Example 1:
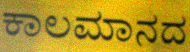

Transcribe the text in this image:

ಕಾಲಮಾನದ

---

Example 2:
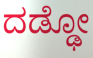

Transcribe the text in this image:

ದಡ್ಢೋ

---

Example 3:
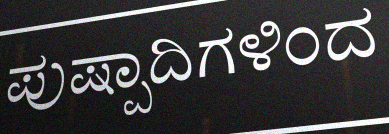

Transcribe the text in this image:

ಪುಷ್ಪಾದಿಗಳಿಂದ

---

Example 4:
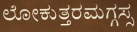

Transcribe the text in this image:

ಲೋಕುತ್ತರಮಗ್ಗಸ್ಸ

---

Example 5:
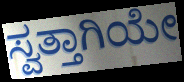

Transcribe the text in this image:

ಸ್ವತ್ತಾಗಿಯೇ